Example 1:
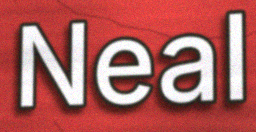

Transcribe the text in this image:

Neal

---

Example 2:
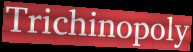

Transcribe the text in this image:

Trichinopoly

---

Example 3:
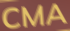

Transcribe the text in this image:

CMA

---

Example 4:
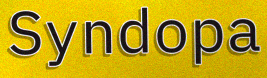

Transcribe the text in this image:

Syndopa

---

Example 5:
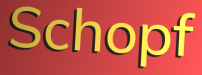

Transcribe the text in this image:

Schopf